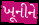
ખૂનીને